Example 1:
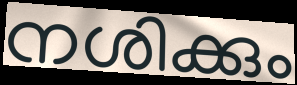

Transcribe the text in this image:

നശിക്കും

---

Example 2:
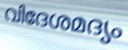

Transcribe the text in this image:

വിദേശമദ്യം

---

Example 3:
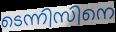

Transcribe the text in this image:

ടെന്നിസിനെ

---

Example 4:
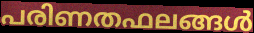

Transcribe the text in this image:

പരിണതഫലങ്ങൾ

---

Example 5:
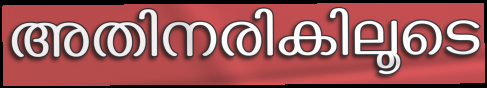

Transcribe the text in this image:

അതിനരികിലൂടെ